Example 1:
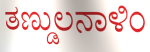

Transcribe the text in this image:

ತಣ್ಡುಲನಾಳಿಂ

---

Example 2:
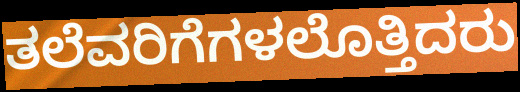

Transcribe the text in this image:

ತಲೆವರಿಗೆಗಳಲೊತ್ತಿದರು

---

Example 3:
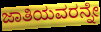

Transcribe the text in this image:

ಜಾತಿಯವರನ್ನೇ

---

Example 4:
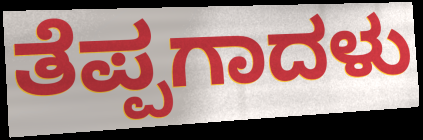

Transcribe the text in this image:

ತೆಪ್ಪಗಾದಳು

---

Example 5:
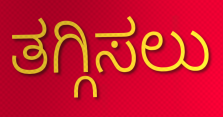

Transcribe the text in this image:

ತಗ್ಗಿಸಲು